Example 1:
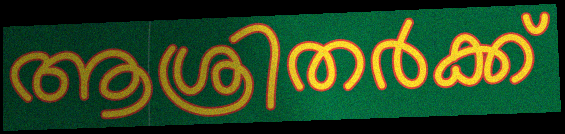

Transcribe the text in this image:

ആശ്രിതർക്ക്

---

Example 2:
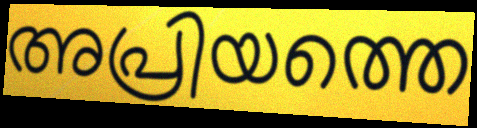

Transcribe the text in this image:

അപ്രിയത്തെ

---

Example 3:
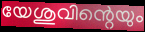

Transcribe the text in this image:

യേശുവിന്റെയും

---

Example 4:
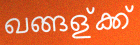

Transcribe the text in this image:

ഖങ്ങള്ക്ക്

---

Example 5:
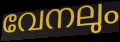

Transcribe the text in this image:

വേനലും